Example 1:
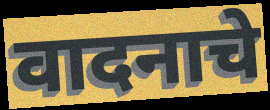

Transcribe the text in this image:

वादनाचे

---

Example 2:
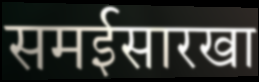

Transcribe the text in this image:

समईसारखा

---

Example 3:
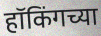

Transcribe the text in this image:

हॉकिंगच्या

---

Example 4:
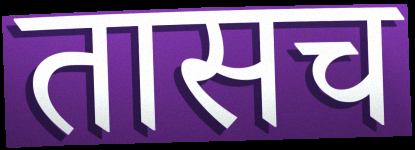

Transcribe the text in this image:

तासच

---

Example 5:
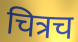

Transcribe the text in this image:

चित्रच